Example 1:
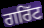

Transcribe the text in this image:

ਗਰਿੱਟ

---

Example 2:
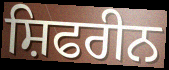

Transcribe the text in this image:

ਸ਼ਿਫਰੀਨ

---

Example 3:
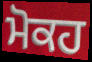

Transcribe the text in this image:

ਮੋਕਹ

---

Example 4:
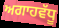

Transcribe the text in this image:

ਅਗਾਹਵੱਧੂ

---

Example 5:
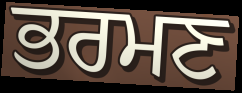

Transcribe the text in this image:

ਭਰਮਣ